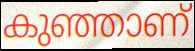
കുഞ്ഞാണ്